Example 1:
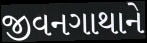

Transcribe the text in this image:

જીવનગાથાને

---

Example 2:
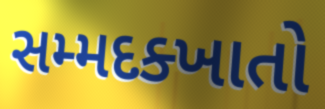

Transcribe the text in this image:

સમ્મદક્ખાતો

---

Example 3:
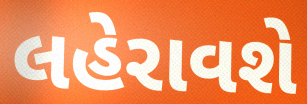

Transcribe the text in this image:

લહેરાવશે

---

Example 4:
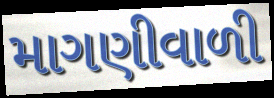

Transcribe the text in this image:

માગણીવાળી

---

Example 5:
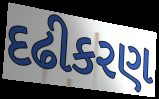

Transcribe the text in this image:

દઢીકરણ